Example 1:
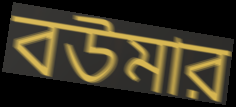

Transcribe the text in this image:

বউমার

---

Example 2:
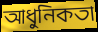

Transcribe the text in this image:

আধুনিকতা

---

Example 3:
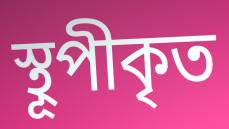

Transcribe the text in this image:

স্থূপীকৃত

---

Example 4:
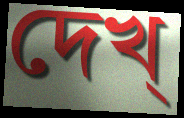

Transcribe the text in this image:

দেখ্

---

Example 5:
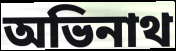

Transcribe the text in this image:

অভিনাথ